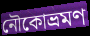
নৌকোভ্রমণ